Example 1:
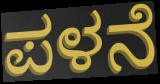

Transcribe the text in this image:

ಪಳನೆ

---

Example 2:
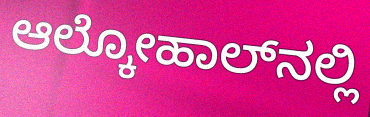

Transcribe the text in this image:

ಆಲ್ಕೋಹಾಲ್‌ನಲ್ಲಿ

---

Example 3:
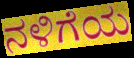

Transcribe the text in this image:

ನಳಿಗೆಯ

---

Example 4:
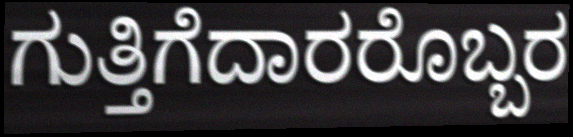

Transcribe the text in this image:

ಗುತ್ತಿಗೆದಾರರೊಬ್ಬರ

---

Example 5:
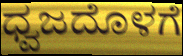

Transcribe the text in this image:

ಧ್ವಜದೊಳಗೆ